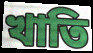
খাতি